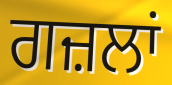
ਗਜ਼ਲਾਂ